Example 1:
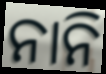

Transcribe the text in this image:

ନାନି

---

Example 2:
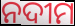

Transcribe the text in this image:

ନଦୀମ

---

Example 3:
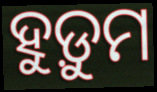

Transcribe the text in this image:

ହୁଡ଼ୁମ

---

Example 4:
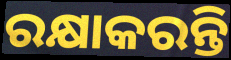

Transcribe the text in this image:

ରକ୍ଷାକରନ୍ତି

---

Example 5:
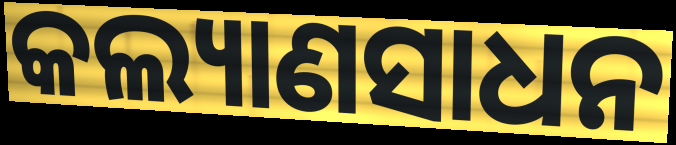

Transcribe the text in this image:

କଲ୍ୟାଣସାଧନ